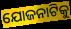
ଯୋଜନାଟିକୁ